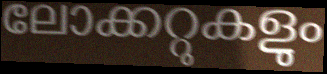
ലോക്കറ്റുകളും